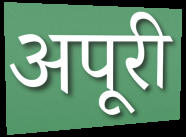
अपूरी